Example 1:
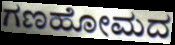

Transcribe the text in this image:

ಗಣಹೋಮದ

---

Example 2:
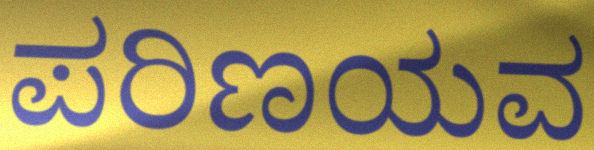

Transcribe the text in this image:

ಪರಿಣಯವ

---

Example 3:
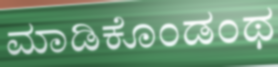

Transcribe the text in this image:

ಮಾಡಿಕೊಂಡಂಥ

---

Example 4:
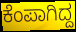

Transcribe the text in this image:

ಕೆಂಪಾಗಿದ್ದ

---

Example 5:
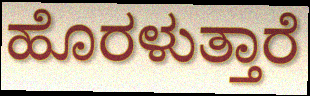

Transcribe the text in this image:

ಹೊರಳುತ್ತಾರೆ